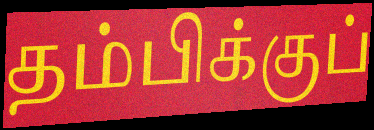
தம்பிக்குப்